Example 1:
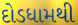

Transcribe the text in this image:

દોડધામથી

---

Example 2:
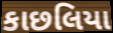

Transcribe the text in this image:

કાછલિયા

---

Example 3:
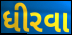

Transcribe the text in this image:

ધીરવા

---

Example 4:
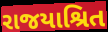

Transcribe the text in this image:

રાજયાશ્રિત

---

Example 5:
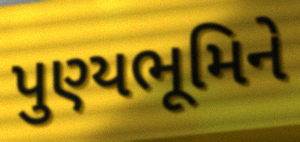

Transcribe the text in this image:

પુણ્યભૂમિને